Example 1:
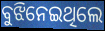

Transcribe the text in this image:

ବୁଝିନେଇଥିଲେ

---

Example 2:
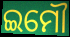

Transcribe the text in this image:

ଇମୌ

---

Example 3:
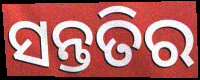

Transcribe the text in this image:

ସନ୍ତତିର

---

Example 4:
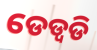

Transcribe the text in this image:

ଡେଡ୍ବଡି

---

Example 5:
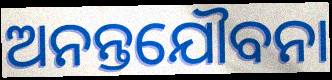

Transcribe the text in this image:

ଅନନ୍ତଯୌବନା